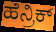
ಹೆನ್ರಿಕ್